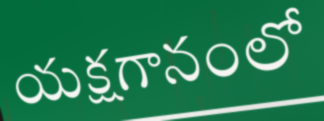
యక్షగానంలో